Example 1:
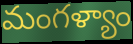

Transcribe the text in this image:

మంగళ్యాం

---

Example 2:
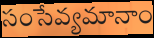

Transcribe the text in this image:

సంసేవ్యమానాం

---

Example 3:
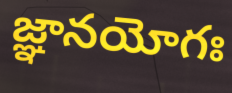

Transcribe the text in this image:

జ్ఞానయోగః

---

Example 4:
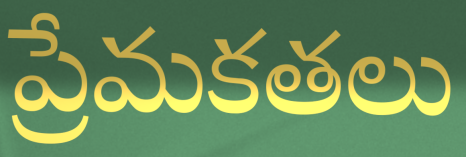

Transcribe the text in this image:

ప్రేమకతలు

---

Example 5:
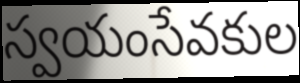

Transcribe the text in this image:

స్వయంసేవకుల